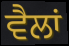
ਵੈਲਾਂ